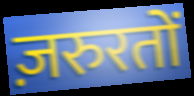
ज़रुरतों